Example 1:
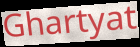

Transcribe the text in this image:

Ghartyat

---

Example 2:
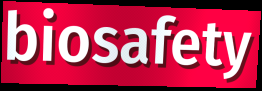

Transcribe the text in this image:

biosafety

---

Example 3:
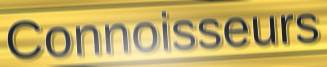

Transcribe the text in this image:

Connoisseurs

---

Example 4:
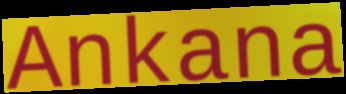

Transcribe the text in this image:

Ankana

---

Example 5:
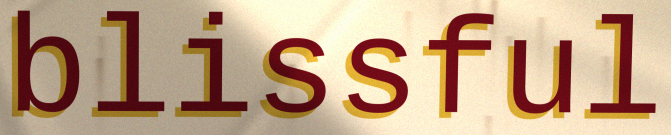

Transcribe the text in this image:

blissful